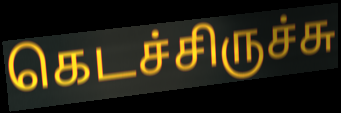
கெடச்சிருச்சு